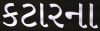
કટારના